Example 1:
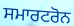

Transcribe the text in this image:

ਸਮਾਰਟਰੋਨ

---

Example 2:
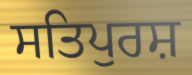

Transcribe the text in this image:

ਸਤਿਪੁਰਸ਼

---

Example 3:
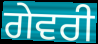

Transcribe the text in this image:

ਗੇਵਰੀ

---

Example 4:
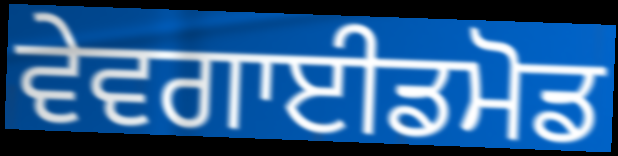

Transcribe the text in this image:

ਵੇਵਗਾਈਡਮੋਡ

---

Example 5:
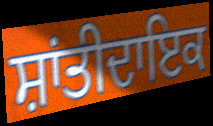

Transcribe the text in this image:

ਸ਼ਾਂਤੀਦਾਇਕ